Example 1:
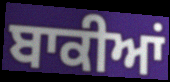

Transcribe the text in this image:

ਬਾਕੀਆਂ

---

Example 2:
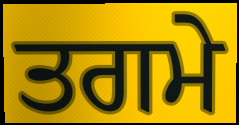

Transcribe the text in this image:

ਤਗਮੇ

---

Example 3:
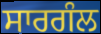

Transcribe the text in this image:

ਸਾਰਗੰਲ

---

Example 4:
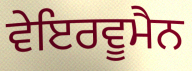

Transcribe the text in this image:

ਵੇਇਰਵੂਮੈਨ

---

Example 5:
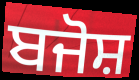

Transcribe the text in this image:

ਬਜੋਸ਼